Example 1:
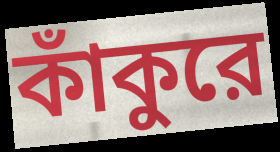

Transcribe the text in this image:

কাঁকুরে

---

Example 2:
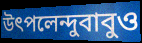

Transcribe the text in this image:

উৎপলেন্দুবাবুও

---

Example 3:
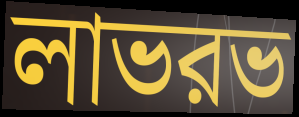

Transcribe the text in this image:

লাভরভ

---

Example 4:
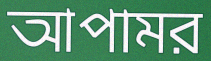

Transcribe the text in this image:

আপামর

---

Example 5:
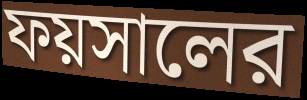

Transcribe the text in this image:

ফয়সালের